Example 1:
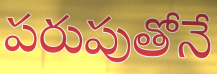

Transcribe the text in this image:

పరుపుతోనే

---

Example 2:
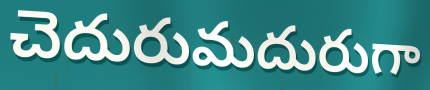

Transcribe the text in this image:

చెదురుమదురుగా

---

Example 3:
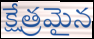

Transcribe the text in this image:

క్షేత్రమైన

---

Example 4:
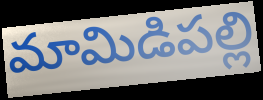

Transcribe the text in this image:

మామిడిపల్లి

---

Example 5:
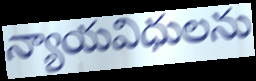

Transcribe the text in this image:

న్యాయవిధులను